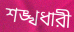
শঙ্খধারী